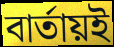
বার্তায়ই